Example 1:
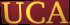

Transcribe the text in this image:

UCA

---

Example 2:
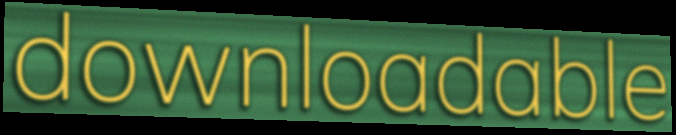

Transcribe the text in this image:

downloadable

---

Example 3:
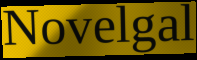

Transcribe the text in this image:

Novelgal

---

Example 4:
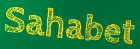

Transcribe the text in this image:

Sahabet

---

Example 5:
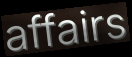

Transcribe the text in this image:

affairs